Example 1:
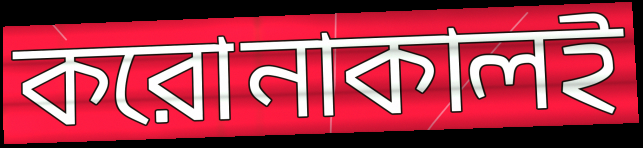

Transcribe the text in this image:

করোনাকালই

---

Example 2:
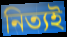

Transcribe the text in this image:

নিত্যই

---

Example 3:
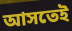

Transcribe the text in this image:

আসতেই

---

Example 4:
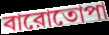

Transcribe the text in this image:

বারোতোপা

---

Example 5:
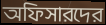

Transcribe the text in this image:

অফিসারদের